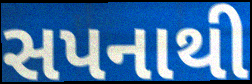
સપનાથી